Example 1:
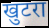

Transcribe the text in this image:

खुटरा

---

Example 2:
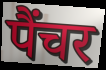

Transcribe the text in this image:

पैंचर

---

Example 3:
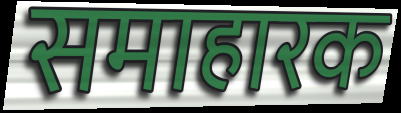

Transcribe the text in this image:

समाहारक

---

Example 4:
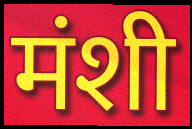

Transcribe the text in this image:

मंशी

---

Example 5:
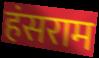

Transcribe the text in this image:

हंसराम